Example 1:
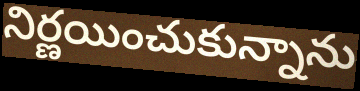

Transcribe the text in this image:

నిర్ణయించుకున్నాను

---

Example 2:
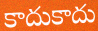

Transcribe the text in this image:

కాదుకాదు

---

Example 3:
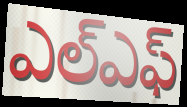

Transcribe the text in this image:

ఎల్ఎఫ్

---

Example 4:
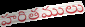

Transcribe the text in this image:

హరితములు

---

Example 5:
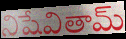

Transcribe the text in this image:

నిషేవితామ్